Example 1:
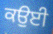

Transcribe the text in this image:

ਕਉਈ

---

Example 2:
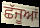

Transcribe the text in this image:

ਛੱਜੂਆਂ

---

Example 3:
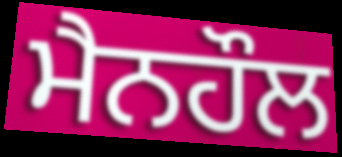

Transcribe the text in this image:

ਮੈਨਹੌਲ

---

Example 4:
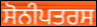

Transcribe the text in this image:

ਸੋਨੀਪਤਰਸ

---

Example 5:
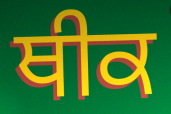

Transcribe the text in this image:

ਥੀਕ